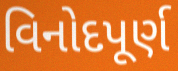
વિનોદપૂર્ણ